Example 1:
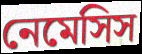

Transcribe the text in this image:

নেমেসিস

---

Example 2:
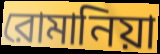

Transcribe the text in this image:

রোমানিয়া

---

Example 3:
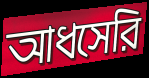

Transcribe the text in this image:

আধসেরি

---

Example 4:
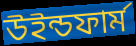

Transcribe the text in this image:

উইন্ডফার্ম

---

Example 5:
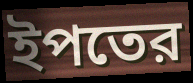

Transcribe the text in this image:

ইপতের